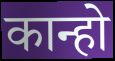
कान्हो